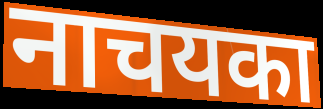
नाचयका